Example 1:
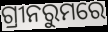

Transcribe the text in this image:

ଗ୍ରୀନରୁମରେ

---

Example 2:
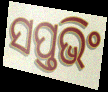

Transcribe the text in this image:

ସପ୍ତଭିଂ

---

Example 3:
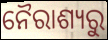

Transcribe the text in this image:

ନୈରାଶ୍ୟରୁ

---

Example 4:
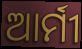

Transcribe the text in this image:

ଆର୍ମୀ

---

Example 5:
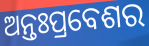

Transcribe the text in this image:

ଅନ୍ତଃପ୍ରବେଶର